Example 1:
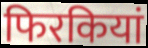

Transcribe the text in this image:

फिरकियां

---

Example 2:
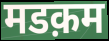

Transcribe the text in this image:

मडक़म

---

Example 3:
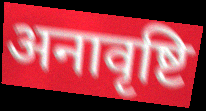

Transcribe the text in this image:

अनावृष्टि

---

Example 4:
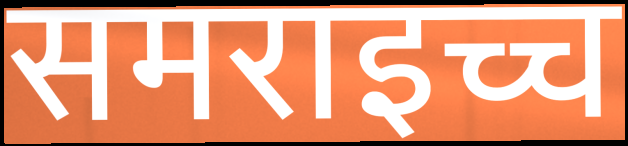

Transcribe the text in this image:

समराइच्च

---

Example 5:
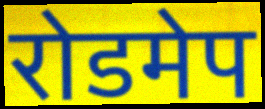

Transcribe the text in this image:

रोडमेप